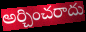
అర్చించరాదు